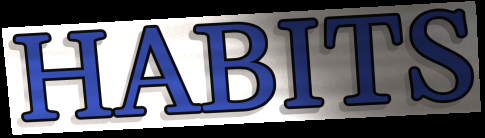
HABITS